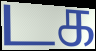
டக